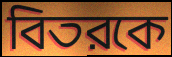
বিতরকে